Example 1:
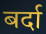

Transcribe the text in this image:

बर्दा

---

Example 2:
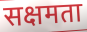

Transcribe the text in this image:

सक्षमता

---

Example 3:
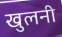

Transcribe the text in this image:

खुलनी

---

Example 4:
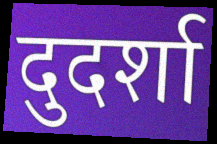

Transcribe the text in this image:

दुदर्शा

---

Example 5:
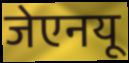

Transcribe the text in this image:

जेएनयू